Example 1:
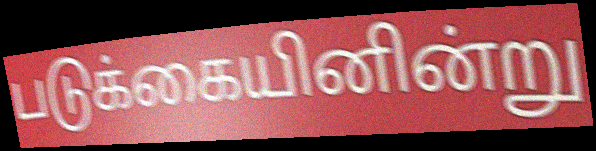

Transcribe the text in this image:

படுக்கையினின்று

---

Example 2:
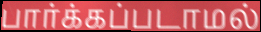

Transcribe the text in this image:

பார்க்கப்படாமல்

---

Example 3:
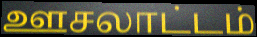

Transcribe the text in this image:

ஊசலாட்டம்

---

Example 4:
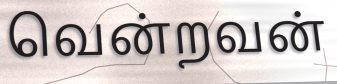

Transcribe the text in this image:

வென்றவன்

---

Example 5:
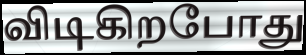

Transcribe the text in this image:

விடிகிறபோது